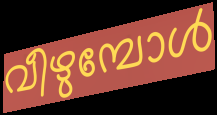
വീഴുമ്പോൾ